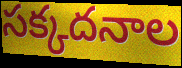
సక్కదనాల